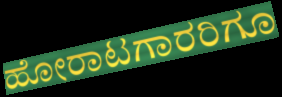
ಹೋರಾಟಗಾರರಿಗೂ